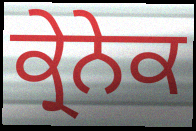
ਕ੍ਰੇਨੇਕ